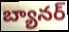
బ్యానర్